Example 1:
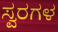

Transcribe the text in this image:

ಸ್ವರಗಳ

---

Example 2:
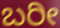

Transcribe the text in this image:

ಬರೀ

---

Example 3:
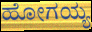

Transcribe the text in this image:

ಹೋಗಯ್ಯ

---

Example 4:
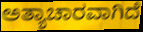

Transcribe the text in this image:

ಅತ್ಯಾಚಾರವಾಗಿದೆ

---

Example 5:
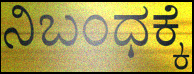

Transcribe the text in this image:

ನಿಬಂಧಕ್ಕೆ